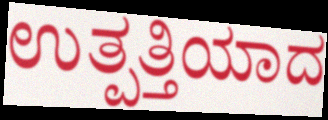
ಉತ್ಪತ್ತಿಯಾದ